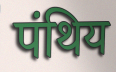
पंथिय